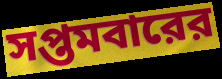
সপ্তমবারের